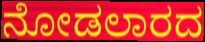
ನೋಡಲಾರದ